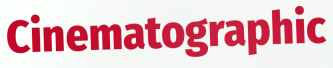
Cinematographic